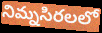
నిమ్నసిరలలో